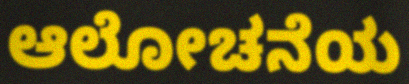
ಆಲೋಚನೆಯ